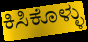
ಕಿಸಿಕೊಳ್ಳು